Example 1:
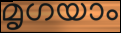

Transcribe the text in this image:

മൃഗയാം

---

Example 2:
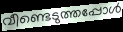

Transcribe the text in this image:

വീണ്ടെടുത്തപ്പോൾ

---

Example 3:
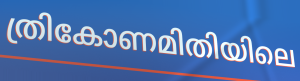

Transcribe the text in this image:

ത്രികോണമിതിയിലെ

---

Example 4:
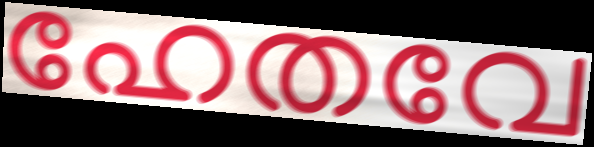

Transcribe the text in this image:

ഹേതവേ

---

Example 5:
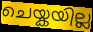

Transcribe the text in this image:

ചെയ്കയില്ല